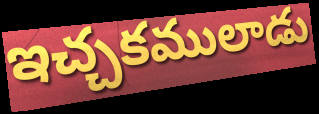
ఇచ్చకములాడు